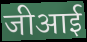
जीआई